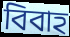
বিবাহ